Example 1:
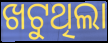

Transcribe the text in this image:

ଖଟୁଥିଲା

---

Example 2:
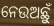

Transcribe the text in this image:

ନେଉଅଛୁଁ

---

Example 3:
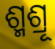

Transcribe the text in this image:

ଶ୍ମଶ୍ରୂ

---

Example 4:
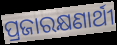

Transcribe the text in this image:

ପ୍ରଜାରକ୍ଷଣାର୍ଥୀ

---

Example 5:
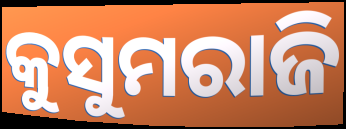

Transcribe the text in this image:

କୁସୁମରାଜି